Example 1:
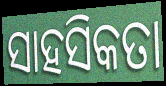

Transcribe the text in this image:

ସାହସିକତା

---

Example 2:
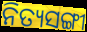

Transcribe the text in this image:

ନିତ୍ୟସଙ୍ଗୀ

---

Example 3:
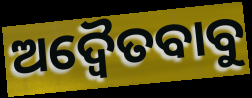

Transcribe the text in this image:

ଅଦ୍ୱୈତବାବୁ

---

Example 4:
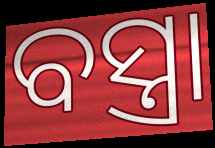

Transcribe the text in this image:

ବସ୍ତ୍ରା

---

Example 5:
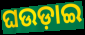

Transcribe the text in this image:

ଘଉଡ଼ାଇ